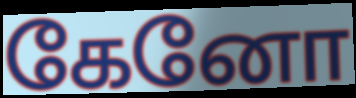
கேனோ